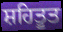
ਸ਼ਹਿਤੂਤ